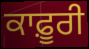
ਕਾਫ਼ੂਰੀ